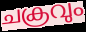
ചക്രവും